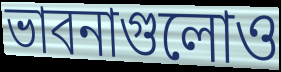
ভাবনাগুলোও